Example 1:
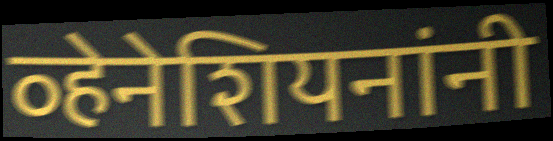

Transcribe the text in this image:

व्हेनेशियनांनी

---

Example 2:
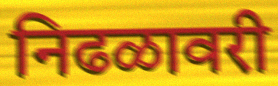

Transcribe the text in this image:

निढळावरी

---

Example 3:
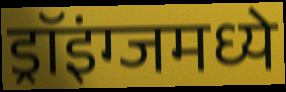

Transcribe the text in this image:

ड्रॉइंग्जमध्ये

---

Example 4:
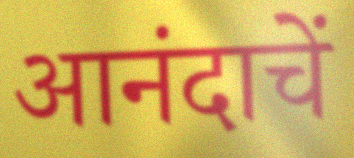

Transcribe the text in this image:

आनंदाचें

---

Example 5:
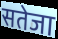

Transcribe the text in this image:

सतेजा